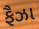
ફૈઝા